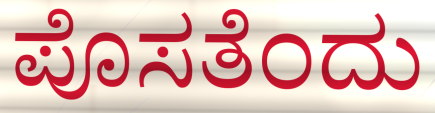
ಪೊಸತೆಂದು